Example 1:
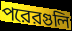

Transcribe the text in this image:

পরেরগুলি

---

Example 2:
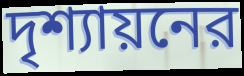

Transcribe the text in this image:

দৃশ্যায়নের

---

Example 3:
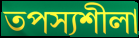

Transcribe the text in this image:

তপস্যশীলা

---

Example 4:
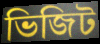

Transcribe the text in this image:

ভিজিট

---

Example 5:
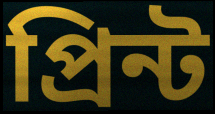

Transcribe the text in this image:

প্রিন্ট